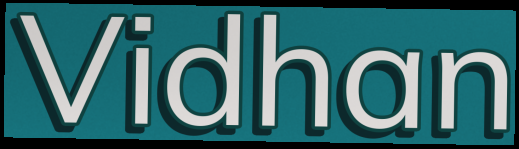
Vidhan